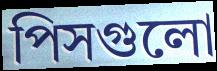
পিসগুলো